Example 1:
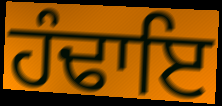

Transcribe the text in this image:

ਹੰਢਾਇ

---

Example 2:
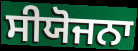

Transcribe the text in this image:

ਸੀਯੋਜਨਾ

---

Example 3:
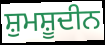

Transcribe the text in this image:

ਸ਼ੁਮਸ਼ੂਦੀਨ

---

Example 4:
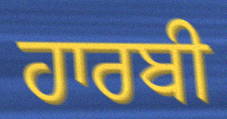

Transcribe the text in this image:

ਹਾਰਬੀ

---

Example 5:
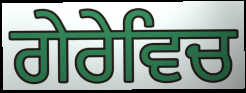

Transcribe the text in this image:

ਗੇਰੇਵਿਚ